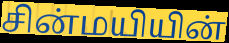
சின்மயியின்